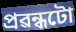
প্ৰৱন্ধটো